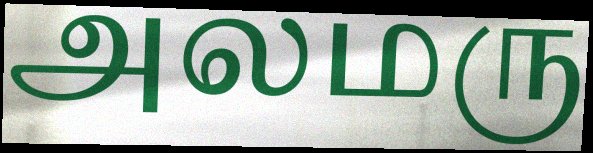
அலமரு